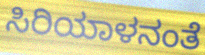
ಸಿರಿಯಾಳನಂತೆ